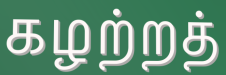
கழற்றத்